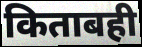
किताबही